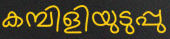
കമ്പിളിയുടുപ്പു